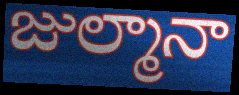
జుల్మానా